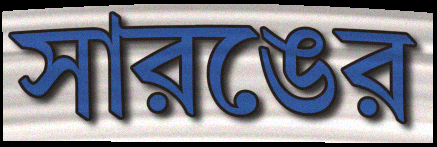
সারঙের